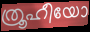
ത്രൂഹീയോ